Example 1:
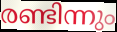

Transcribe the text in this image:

രണ്ടിന്നും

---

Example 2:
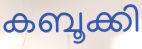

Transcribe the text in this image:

കബൂക്കി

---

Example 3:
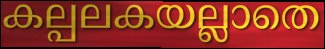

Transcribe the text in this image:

കല്പലകയല്ലാതെ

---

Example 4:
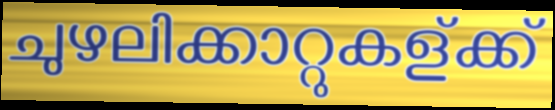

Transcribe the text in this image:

ചുഴലിക്കാറ്റുകള്ക്ക്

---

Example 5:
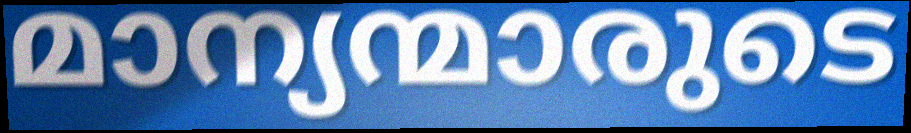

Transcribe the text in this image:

മാന്യന്മാരുടെ